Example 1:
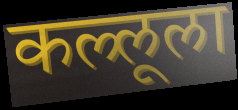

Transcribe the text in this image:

कल्लूला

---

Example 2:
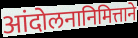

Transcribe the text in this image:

आंदोलनानिमित्ताने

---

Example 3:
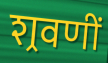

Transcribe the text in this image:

श्रवणीं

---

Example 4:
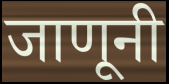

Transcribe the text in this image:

जाणूनी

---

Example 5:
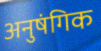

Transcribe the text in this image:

अनुषंगिक